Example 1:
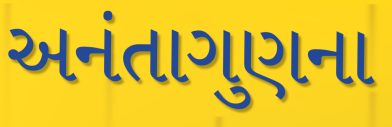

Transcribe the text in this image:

અનંતાગુણના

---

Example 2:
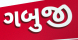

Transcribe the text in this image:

ગબુજી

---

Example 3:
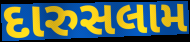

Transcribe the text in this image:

દારુસલામ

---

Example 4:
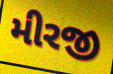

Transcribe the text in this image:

મીરજી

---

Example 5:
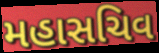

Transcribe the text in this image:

મહાસચિવ